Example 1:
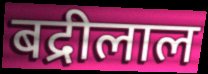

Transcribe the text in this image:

बद्रीलाल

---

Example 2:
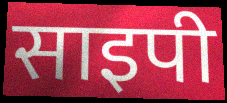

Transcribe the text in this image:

साइपी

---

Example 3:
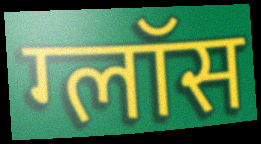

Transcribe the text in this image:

ग्लॉस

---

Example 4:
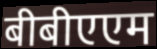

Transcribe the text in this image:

बीबीएएम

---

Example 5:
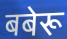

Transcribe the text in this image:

बबेरू